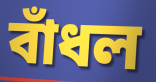
বাঁধল